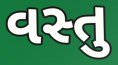
વસ્તુ